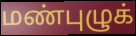
மண்புழுக்